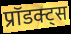
प्रॉडक्ट्स